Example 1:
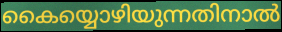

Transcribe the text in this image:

കൈയ്യൊഴിയുന്നതിനാൽ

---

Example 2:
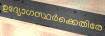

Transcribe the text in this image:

ഉദ്യോഗസ്ഥർക്കെതിരേ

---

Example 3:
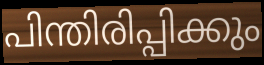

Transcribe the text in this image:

പിന്തിരിപ്പിക്കും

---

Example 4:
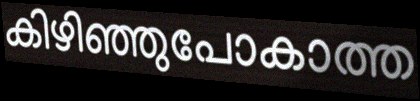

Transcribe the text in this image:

കിഴിഞ്ഞുപോകാത്ത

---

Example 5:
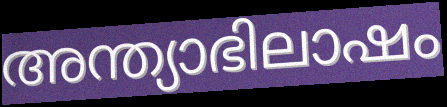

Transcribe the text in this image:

അന്ത്യാഭിലാഷം